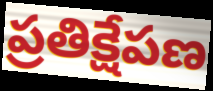
ప్రతిక్షేపణ